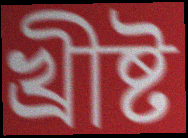
খ্ৰীষ্ট